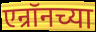
एन्रॉनच्या